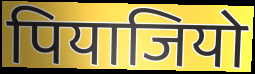
पियाजियो